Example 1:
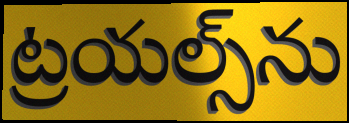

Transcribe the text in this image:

ట్రయల్స్‌ను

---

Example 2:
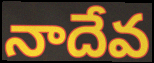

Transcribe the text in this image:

నాదేవ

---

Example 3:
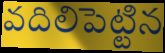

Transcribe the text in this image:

వదిలిపెట్టిన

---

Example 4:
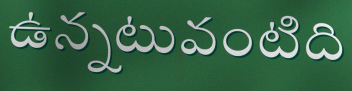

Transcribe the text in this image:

ఉన్నటువంటిది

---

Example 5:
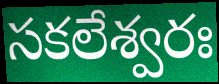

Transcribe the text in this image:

సకలేశ్వరః